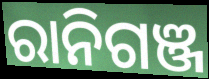
ରାନିଗଞ୍ଜ